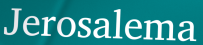
Jerosalema